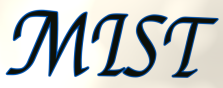
MIST